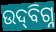
ଉଦ୍‍ବିଗ୍ନ